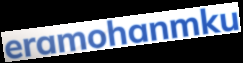
eramohanmku